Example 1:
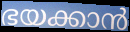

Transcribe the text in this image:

ഭയക്കാൻ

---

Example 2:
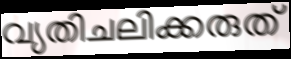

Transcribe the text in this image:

വ്യതിചലിക്കരുത്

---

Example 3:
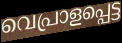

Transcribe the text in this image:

വെപ്രാളപ്പെട്ട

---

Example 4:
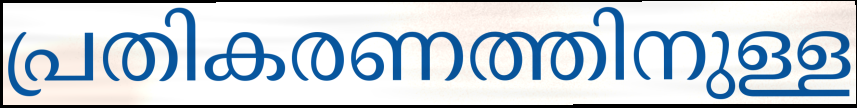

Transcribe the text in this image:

പ്രതികരണത്തിനുള്ള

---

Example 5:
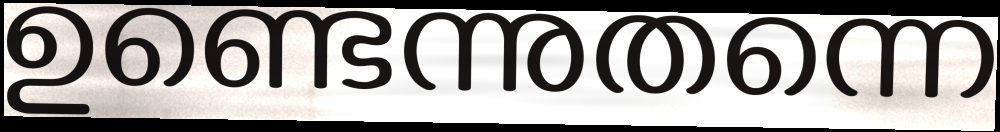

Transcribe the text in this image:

ഉണ്ടെന്നുതന്നെ